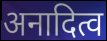
अनादित्व